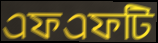
এফএফটি